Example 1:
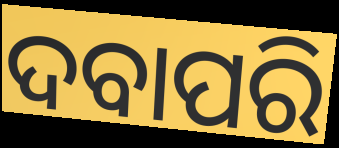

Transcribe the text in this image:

ଦବାପରି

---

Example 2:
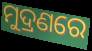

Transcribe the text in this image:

ମୁଦ୍ରଣରେ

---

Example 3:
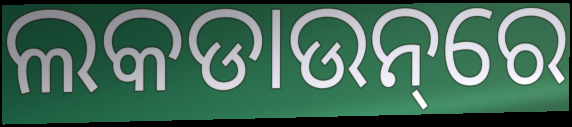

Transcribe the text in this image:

ଲକଡାଉନ୍‌ରେ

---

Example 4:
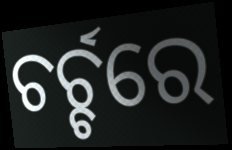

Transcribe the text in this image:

ଚର୍ଚ୍ଚରେ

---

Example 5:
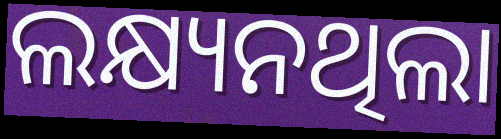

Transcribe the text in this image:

ଲକ୍ଷ୍ୟନଥିଲା